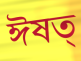
ঈষত্